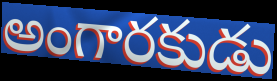
అంగారకుడు